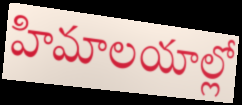
హిమాలయాల్లో